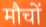
मौचों